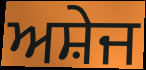
ਅਸ਼ੇਜ